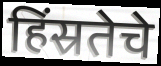
हिंस्रतेचे